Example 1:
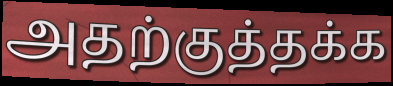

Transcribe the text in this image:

அதற்குத்தக்க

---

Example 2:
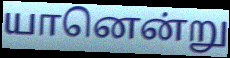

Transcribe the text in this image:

யானென்று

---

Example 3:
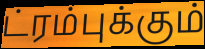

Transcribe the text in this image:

ட்ரம்புக்கும்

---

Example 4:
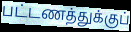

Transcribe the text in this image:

பட்டணத்துக்குப்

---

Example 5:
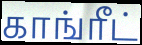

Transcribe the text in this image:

காங்ரீட்